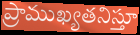
ప్రాముఖ్యతనిస్తూ